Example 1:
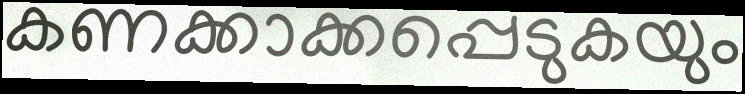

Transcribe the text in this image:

കണക്കാക്കപ്പെടുകയും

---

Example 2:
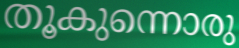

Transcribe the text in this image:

തൂകുന്നൊരു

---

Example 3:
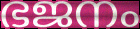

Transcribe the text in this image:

ഭജനം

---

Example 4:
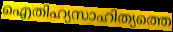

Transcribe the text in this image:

ഐതിഹ്യസാഹിത്യത്തെ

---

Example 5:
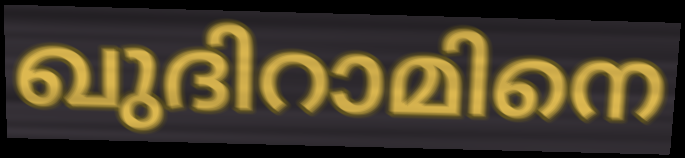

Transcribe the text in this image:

ഖുദിറാമിനെ